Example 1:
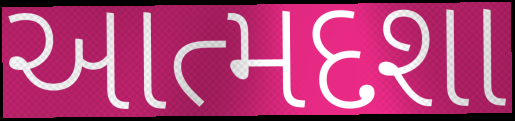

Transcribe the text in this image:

આત્મદશા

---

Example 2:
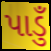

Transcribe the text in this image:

પાડુઁ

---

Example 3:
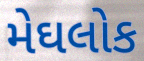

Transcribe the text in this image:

મેઘલોક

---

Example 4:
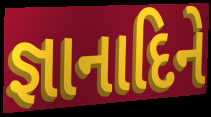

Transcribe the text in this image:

જ્ઞાનાદિને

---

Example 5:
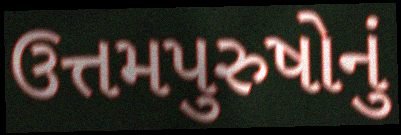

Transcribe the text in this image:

ઉત્તમપુરુષોનું